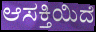
ಆಸಕ್ತಿಯಿದೆ